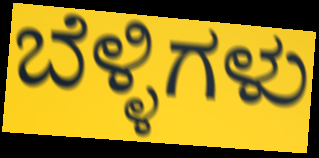
ಬೆಳ್ಳಿಗಳು